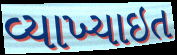
વ્યાખ્યાઇત